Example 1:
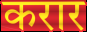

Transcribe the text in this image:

करार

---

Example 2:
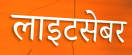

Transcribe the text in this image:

लाइटसेबर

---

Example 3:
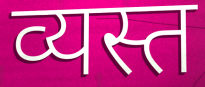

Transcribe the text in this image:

व्यस्त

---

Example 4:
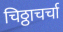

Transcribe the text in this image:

चिठ्ठाचर्चा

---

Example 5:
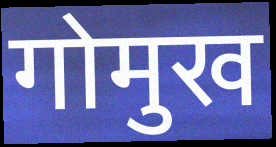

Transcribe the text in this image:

गोमुख